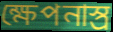
ক্ষেপনাস্ত্র